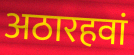
अठारहवां